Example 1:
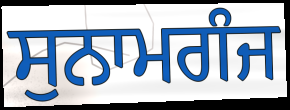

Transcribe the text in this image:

ਸੁਨਾਮਗੰਜ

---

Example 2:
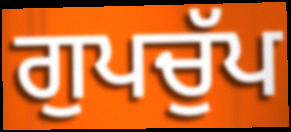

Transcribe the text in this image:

ਗੁਪਚੁੱਪ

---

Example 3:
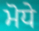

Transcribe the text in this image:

ਮੋਧੇ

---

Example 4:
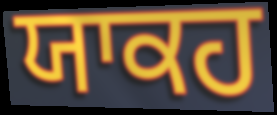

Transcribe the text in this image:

ਯਾਕਹ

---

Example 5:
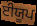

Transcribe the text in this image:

ਈਯੂਪ